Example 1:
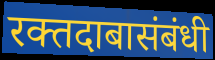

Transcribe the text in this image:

रक्तदाबासंबंधी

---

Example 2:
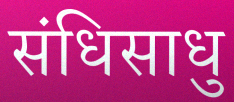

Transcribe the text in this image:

संधिसाधु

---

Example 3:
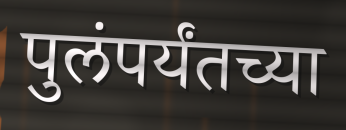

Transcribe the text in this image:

पुलंपर्यंतच्या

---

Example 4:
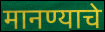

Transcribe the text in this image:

मानण्याचे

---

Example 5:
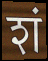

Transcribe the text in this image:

शं